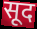
सूद